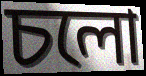
চলো